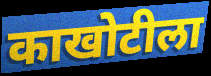
काखोटीला